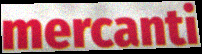
mercanti